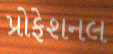
પ્રોફેશનલ